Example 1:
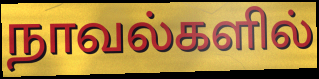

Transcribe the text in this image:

நாவல்களில்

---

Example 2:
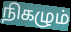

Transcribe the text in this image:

நிகழும்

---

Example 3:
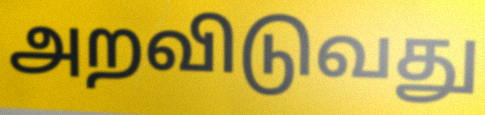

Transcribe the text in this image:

அறவிடுவது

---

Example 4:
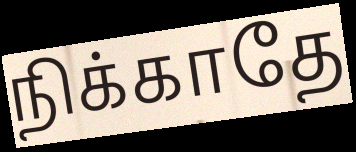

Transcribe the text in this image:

நிக்காதே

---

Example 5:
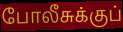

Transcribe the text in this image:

போலீசுக்குப்